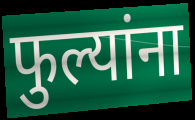
फुल्यांना